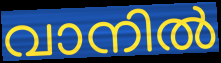
വാനിൽ